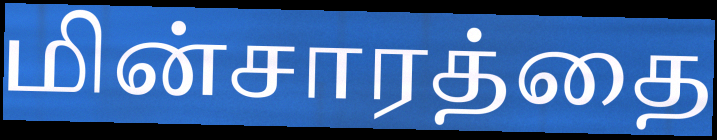
மின்சாரத்தை